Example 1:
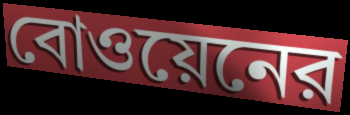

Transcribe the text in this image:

বোওয়েনের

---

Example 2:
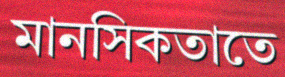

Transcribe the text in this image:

মানসিকতাতে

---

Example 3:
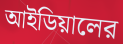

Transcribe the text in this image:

আইডিয়ালের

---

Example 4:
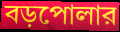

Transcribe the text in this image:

বড়পোলার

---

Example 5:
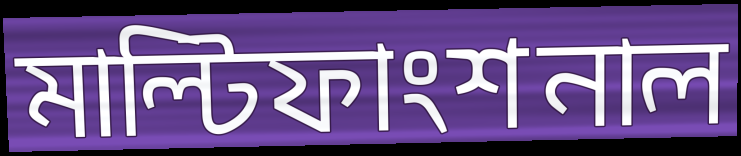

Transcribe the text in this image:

মাল্টিফাংশনাল